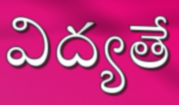
విద్యతే